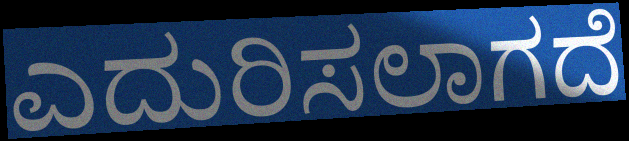
ಎದುರಿಸಲಾಗದೆ